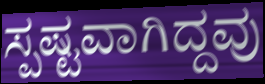
ಸ್ಪಷ್ಟವಾಗಿದ್ದವು